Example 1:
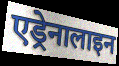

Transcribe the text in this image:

एड्रेनालाइन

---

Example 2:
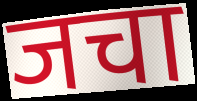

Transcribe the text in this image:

जचा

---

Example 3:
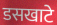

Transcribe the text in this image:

डसखाटे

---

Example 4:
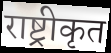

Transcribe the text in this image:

राष्ट्रीकृत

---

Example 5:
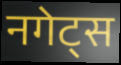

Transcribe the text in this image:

नगेट्स